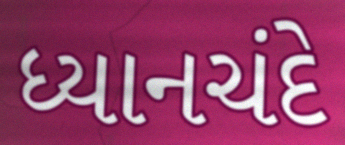
ધ્યાનચંદે